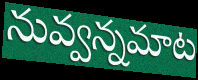
నువ్వన్నమాట